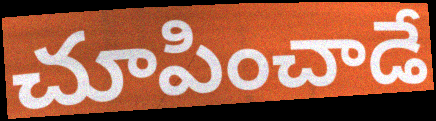
చూపించాడే